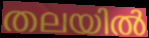
തലയിൽ